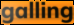
galling